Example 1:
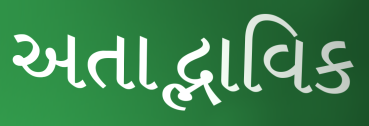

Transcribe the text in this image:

અતાદ્ભાવિક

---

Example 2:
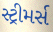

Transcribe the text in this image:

સ્ટ્રીમર્સ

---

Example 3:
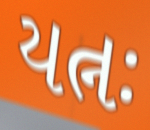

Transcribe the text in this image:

યત્નઃ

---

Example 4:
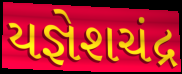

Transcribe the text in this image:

યજ્ઞેશચંદ્ર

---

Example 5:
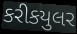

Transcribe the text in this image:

કરીકયુલર